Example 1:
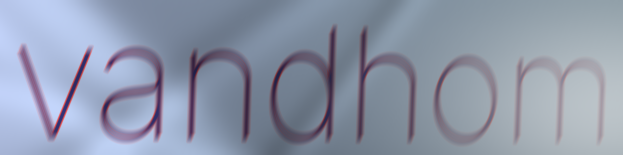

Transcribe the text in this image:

vandhom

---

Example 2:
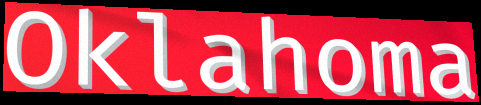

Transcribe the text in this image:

Oklahoma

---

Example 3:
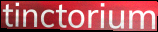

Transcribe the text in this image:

tinctorium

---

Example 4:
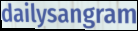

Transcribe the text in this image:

dailysangram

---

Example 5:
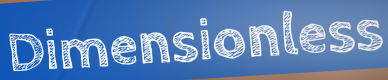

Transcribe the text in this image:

Dimensionless